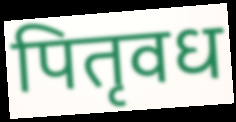
पितृवध